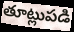
తూట్లుపడి